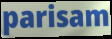
parisam